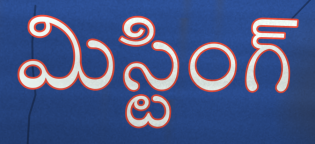
మిస్టింగ్